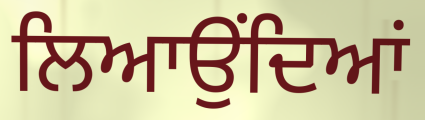
ਲਿਆਉਂਦਿਆਂ